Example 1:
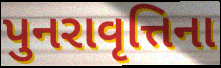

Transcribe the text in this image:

પુનરાવૃત્તિના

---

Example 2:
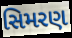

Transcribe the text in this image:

સિમરણ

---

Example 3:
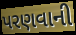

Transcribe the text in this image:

પરણવાની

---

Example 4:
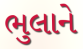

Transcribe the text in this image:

ભુલાને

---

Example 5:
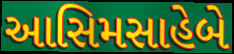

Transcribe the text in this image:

આસિમસાહેબે